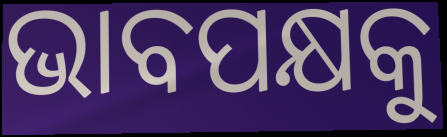
ଭାବପକ୍ଷକୁ